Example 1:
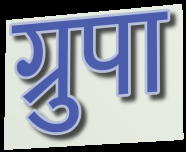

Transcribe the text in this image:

ग्रुपा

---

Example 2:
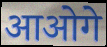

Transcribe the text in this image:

आओगे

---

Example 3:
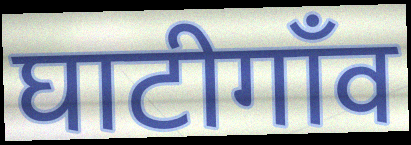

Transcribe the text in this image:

घाटीगाँव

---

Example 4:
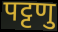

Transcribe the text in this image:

पट्टणु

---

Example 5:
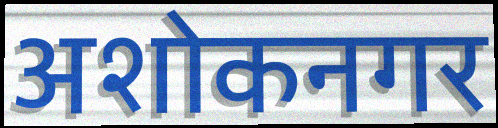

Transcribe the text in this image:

अशोकनगर